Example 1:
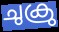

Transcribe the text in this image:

ചുക്രു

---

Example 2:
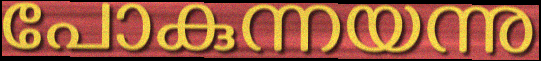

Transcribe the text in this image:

പോകുന്നയന്നു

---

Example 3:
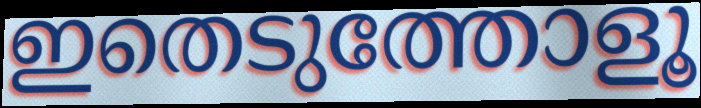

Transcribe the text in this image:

ഇതെടുത്തോളൂ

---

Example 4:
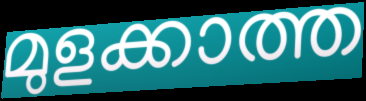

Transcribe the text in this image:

മുളക്കാത്ത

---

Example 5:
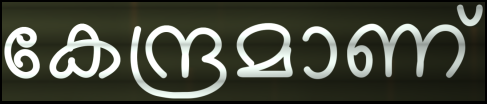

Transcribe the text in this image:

കേന്ദ്രമാണ്